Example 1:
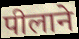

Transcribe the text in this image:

पीलाने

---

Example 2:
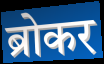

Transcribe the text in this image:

ब्रोकर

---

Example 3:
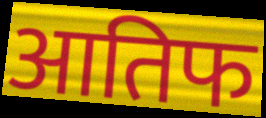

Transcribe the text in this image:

आतिफ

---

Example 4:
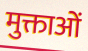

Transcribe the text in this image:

मुक्ताओं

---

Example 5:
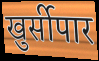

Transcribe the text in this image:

खुर्सीपार